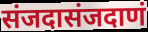
संजदासंजदाणं